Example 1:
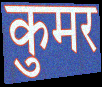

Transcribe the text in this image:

कुमर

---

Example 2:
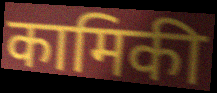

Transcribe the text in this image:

कामिकी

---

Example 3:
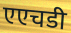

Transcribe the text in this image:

एएचडी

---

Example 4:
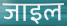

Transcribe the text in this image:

जाइल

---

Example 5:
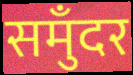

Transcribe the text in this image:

समुँदर